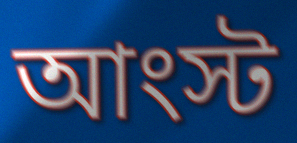
আংস্ট